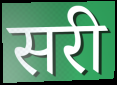
सरी